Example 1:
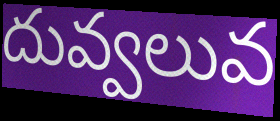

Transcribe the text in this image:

దువ్వలువ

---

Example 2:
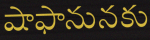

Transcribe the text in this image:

షాఫానునకు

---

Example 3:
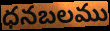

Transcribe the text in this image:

ధనబలము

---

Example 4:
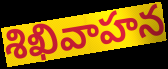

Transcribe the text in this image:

శిఖివాహన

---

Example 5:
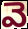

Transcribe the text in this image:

వె